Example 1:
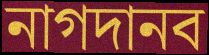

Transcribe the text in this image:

নাগদানব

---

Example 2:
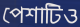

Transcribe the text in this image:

পেশাটিও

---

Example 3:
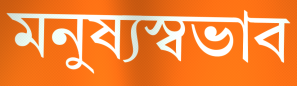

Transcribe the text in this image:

মনুষ্যস্বভাব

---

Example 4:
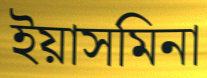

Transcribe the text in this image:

ইয়াসমিনা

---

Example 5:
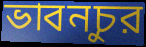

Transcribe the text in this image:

ভাবনচুর